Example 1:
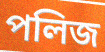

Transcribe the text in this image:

পলিজ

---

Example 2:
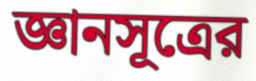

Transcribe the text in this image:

জ্ঞানসূত্রের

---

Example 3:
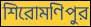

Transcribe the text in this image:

শিরোমণিপুর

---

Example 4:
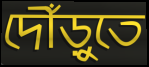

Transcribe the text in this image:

দৌঁড়ুতে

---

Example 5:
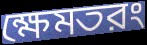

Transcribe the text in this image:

ক্ষেমতরং